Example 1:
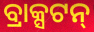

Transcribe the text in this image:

ବ୍ରାକ୍ସଟନ୍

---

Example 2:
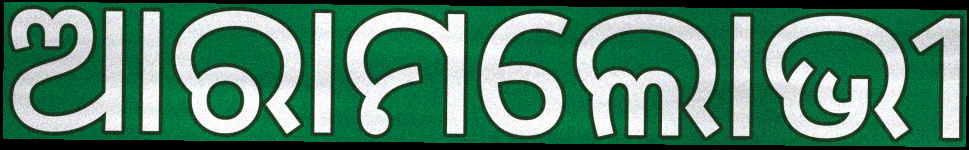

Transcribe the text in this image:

ଆରାମଲୋଭୀ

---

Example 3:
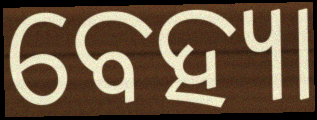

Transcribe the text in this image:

ବେହ୍ୟା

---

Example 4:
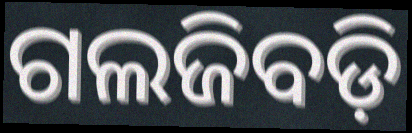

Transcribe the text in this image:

ଗଲଜିବଡ଼ି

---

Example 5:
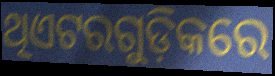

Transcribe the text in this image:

ଥିଏଟରଗୁଡ଼ିକରେ